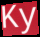
Ky